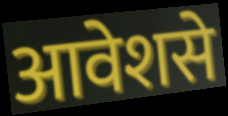
आवेशसे